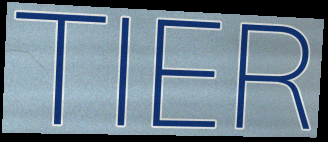
TIER